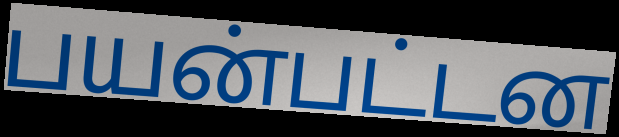
பயன்பட்டன